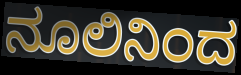
ನೂಲಿನಿಂದ